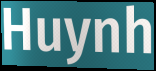
Huynh